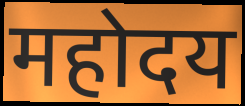
महोदय